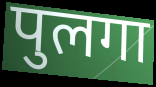
पुलगा